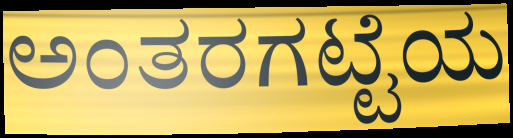
ಅಂತರಗಟ್ಟೆಯ